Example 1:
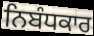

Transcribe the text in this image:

ਨਿਬੰਧਕਾਰ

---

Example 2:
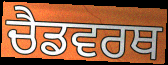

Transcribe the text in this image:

ਚੈਡਵਰਥ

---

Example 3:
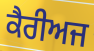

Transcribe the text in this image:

ਕੈਰੀਅਜ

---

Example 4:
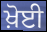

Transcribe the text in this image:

ਖ਼ੋਈ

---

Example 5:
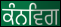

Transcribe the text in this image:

ਕੰਨਵਿਗ